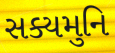
સક્યમુનિ